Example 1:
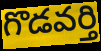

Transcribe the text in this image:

గొడవర్తి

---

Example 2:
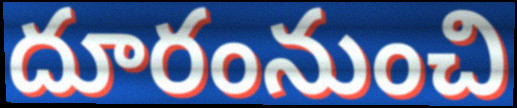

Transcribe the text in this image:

దూరంనుంచి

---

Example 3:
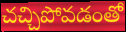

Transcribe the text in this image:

చచ్చిపోవడంతో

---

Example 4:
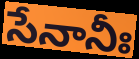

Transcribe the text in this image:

సేనానీః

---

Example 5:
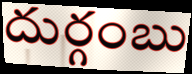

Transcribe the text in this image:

దుర్గంబు